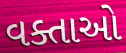
વક્તાઓ